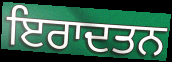
ਇਰਾਦਤਨ